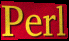
Perl